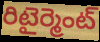
రిటైర్మెంట్